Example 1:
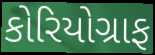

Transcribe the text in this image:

કોરિયોગ્રાફ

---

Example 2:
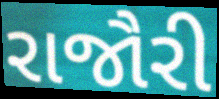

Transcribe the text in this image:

રાજૌરી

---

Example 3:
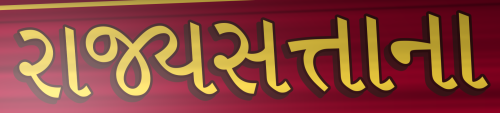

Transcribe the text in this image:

રાજ્યસત્તાના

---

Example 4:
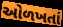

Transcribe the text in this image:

ઓળખતાં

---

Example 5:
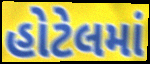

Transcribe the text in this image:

હોટેલમાં